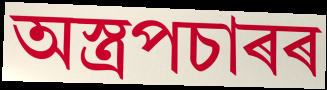
অস্ত্ৰপচাৰৰ